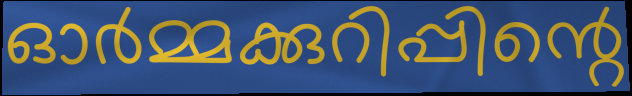
ഓർമ്മക്കുറിപ്പിന്റെ